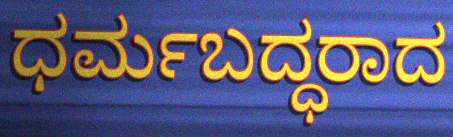
ಧರ್ಮಬದ್ಧರಾದ